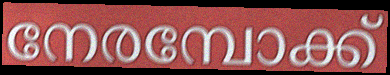
നേരമ്പോക്ക്